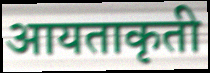
आयताकृती